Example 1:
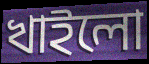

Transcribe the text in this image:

খাইলো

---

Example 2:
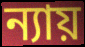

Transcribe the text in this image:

ন্যায়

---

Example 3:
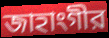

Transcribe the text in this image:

জাহাংগীর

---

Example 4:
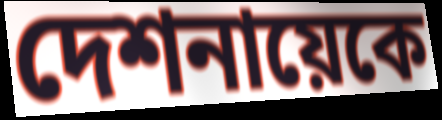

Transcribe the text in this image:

দেশনায়েকে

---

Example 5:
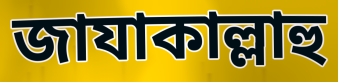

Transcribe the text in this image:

জাযাকাল্লাহু